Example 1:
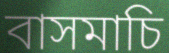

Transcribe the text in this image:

বাসমাচি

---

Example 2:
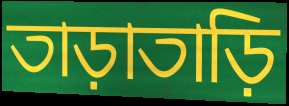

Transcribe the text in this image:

তাড়াতাড়ি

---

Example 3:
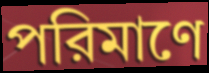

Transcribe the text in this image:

পরিমাণে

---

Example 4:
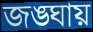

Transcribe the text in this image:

জঙ্ঘায়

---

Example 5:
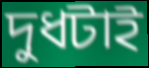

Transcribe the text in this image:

দুধটাই